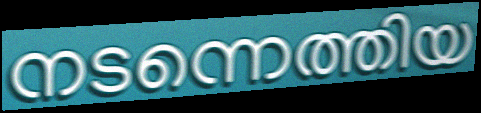
നടന്നെത്തിയ